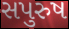
સપુરુષ